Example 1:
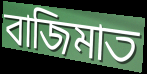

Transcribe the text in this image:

বাজিমাত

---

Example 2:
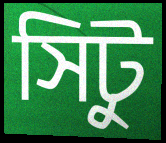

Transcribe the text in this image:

সিটু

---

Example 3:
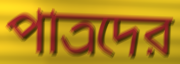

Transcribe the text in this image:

পাত্রদের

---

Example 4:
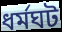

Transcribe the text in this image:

ধর্মঘট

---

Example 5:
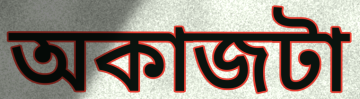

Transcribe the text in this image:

অকাজটা